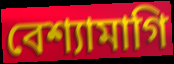
বেশ্যামাগি